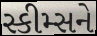
સ્કીમ્સને